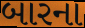
બારના